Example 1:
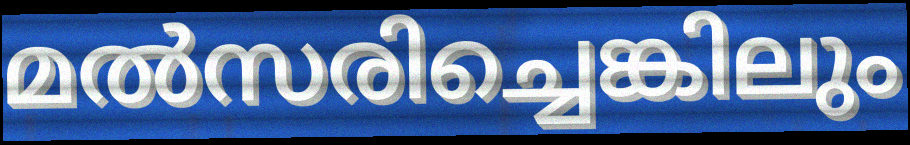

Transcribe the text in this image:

മൽസരിച്ചെങ്കിലും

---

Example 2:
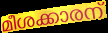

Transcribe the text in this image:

മീശക്കാരന്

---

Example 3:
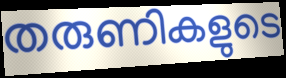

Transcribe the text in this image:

തരുണികളുടെ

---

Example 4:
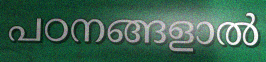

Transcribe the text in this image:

പഠനങ്ങളാൽ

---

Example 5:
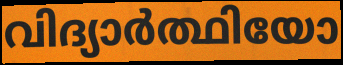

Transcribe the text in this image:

വിദ്യാർത്ഥിയോ